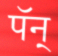
पॅन्